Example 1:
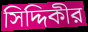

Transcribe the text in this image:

সিদ্দিকীর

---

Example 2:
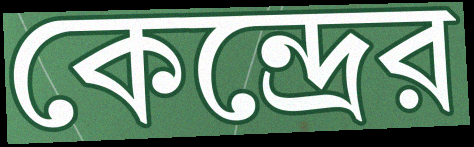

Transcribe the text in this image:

কেন্দ্রের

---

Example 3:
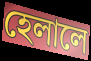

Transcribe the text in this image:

হেলালে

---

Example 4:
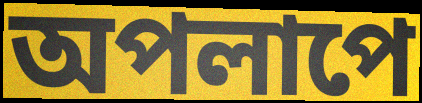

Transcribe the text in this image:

অপলাপে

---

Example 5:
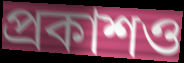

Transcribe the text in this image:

প্রকাশও